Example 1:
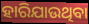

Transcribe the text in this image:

ହାରିଯାଉଥିବା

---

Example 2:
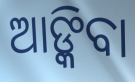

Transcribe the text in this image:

ଆଙ୍କିବା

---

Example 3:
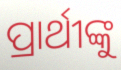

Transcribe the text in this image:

ପ୍ରାର୍ଥୀଙ୍କୁ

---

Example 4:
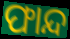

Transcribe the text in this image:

ଫାନ୍ଦ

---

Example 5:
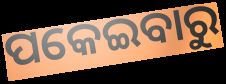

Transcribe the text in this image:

ପକେଇବାରୁ